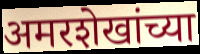
अमरशेखांच्या